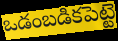
ఒడంబడికపెట్టె